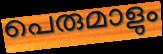
പെരുമാളും